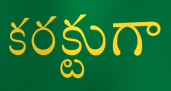
కరక్టుగా